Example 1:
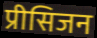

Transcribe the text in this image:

प्रीसिजन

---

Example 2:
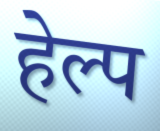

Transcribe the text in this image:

हेल्‍प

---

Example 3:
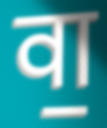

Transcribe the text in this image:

वा॒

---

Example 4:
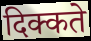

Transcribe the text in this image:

दिक्कते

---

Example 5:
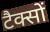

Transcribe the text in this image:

टैक्सों